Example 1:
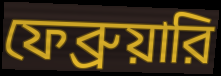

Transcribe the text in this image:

ফেব্রুয়ারি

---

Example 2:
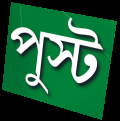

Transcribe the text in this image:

পুস্ট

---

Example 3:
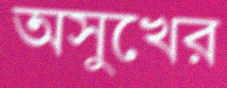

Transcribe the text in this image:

অসুখের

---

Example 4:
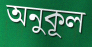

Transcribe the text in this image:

অনুকূল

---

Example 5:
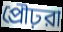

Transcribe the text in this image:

প্রৌঢ়রা